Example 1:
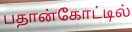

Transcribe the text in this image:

பதான்கோட்டில்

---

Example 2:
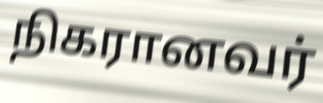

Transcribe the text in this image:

நிகரானவர்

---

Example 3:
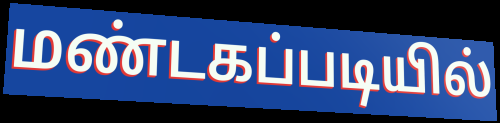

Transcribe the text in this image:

மண்டகப்படியில்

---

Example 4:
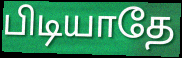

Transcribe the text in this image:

பிடியாதே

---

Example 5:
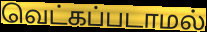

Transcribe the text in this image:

வெட்கப்படாமல்